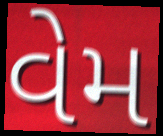
વેમ